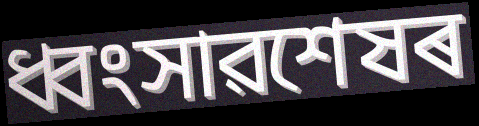
ধ্বংসাৱশেষৰ